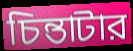
চিন্তাটার